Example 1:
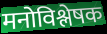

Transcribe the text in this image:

मनोविश्लेषक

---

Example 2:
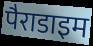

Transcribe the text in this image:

पैराडाइम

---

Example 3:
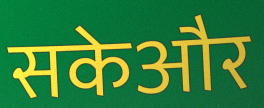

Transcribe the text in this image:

सकेऔर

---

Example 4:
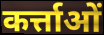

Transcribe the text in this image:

कर्त्ताओं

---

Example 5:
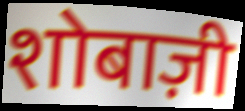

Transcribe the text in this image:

शोबाज़ी